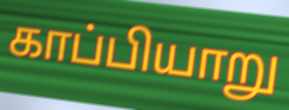
காப்பியாறு